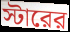
স্টারের